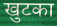
खुटका